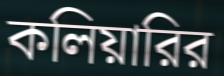
কলিয়ারির